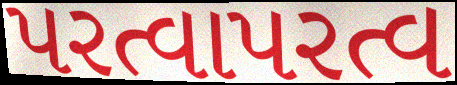
પરત્વાપરત્વ